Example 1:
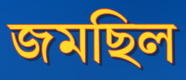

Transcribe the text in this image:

জমছিল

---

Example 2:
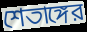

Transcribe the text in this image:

শেতাঙ্গের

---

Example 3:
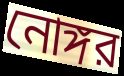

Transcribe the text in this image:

নোঙ্গর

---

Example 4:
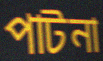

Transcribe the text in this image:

পাটনা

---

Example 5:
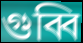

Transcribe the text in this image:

গুব্বি